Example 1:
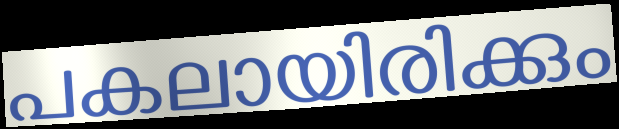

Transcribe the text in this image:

പകലായിരിക്കും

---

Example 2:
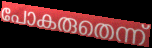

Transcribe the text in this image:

പോകരുതെന്ന്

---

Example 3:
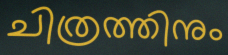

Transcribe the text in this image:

ചിത്രത്തിനും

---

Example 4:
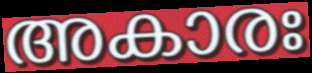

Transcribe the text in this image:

അകാരഃ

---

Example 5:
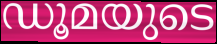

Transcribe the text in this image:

ഡൂമയുടെ